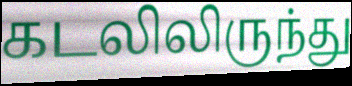
கடலிலிருந்து